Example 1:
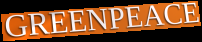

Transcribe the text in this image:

GREENPEACE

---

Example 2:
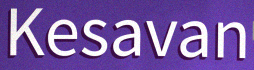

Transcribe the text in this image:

Kesavan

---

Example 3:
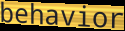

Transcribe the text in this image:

behavior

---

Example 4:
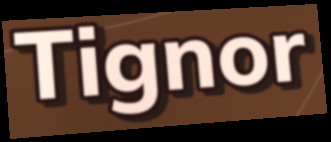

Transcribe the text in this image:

Tignor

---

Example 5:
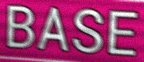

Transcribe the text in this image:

BASE